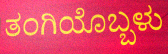
ತಂಗಿಯೊಬ್ಬಳು